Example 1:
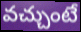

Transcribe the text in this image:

వచ్చుంటే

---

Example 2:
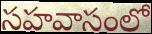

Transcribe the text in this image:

సహవాసంలో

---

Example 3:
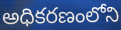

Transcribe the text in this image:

అధికరణంలోని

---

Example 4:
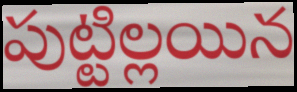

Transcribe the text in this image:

పుట్టిల్లయిన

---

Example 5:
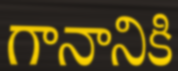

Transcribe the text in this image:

గానానికి